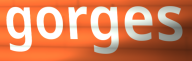
gorges